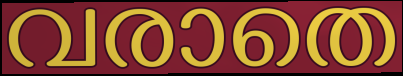
വരാതെ